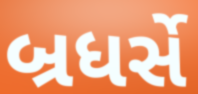
બ્રધર્સે